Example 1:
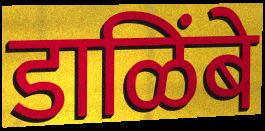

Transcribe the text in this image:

डाळिंबे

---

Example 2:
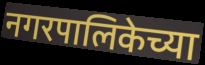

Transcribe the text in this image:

नगरपालिकेच्या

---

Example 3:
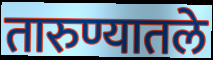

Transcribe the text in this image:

तारुण्यातले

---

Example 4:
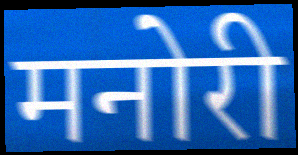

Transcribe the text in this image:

मनोरी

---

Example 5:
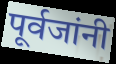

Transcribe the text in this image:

पूर्वजांनी